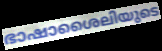
ഭാഷാശൈലിയുടെ